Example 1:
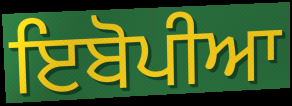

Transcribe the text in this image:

ਇਬੋਪੀਆ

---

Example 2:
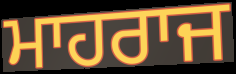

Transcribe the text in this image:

ਮਾਹਰਾਜ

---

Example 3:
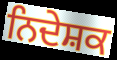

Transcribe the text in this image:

ਨਿਦੇਸ਼ਕ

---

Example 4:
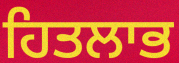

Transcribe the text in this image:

ਹਿਤਲਾਭ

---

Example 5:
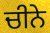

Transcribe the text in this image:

ਚੀਨੇ